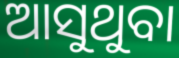
ଆସୁଥୁବା